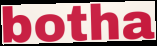
botha